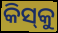
କିସ୍‌କୁ